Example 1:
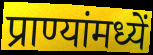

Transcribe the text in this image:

प्राण्यांमध्यें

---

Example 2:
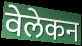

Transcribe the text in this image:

वेलेकन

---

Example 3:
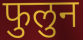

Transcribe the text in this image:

फुलुन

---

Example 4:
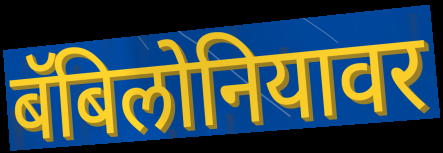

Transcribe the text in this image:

बॅबिलोनियावर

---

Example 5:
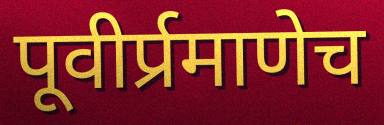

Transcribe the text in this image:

पूवीर्प्रमाणेच